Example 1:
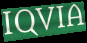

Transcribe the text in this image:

IQVIA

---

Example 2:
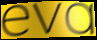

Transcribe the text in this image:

eva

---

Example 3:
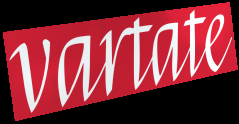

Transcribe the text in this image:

vartate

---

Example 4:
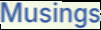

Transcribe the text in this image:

Musings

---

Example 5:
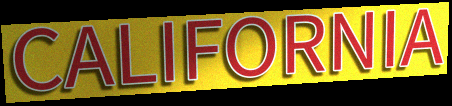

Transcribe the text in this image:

CALIFORNIA